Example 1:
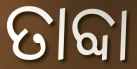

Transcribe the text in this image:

ତାବ୍ଦା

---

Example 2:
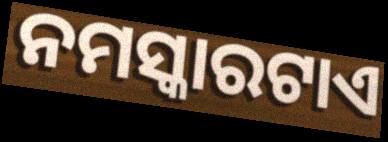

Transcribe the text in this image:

ନମସ୍କାରଟାଏ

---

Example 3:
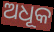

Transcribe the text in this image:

ଅଧୂକ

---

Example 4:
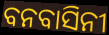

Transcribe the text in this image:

ବନବାସିନୀ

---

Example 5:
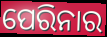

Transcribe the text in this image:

ପେରିନାର